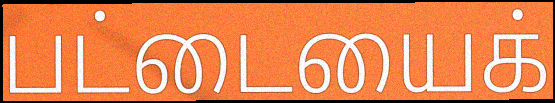
பட்டையைக்